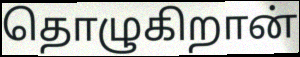
தொழுகிறான்